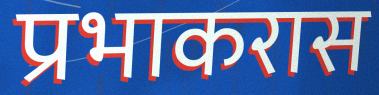
प्रभाकरास